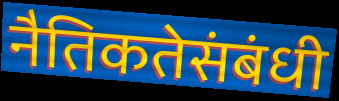
नैतिकतेसंबंधी